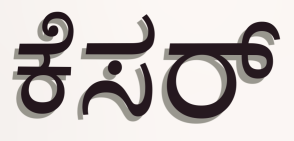
ಕೆಸರ್